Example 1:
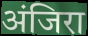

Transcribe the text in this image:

अंजिरा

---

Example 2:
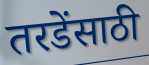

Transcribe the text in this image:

तरडेंसाठी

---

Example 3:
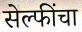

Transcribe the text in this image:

सेल्फींचा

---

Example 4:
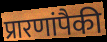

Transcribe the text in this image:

प्रारणांपैकी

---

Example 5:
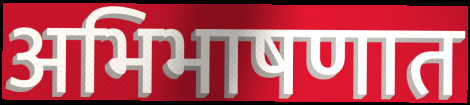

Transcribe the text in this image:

अभिभाषणात